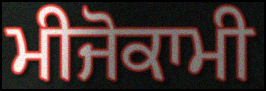
ਮੀਜੋਕਾਮੀ